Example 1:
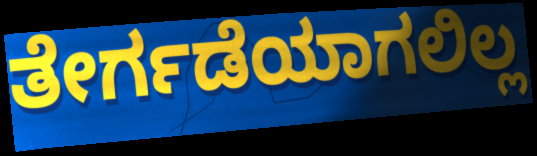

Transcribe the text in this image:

ತೇರ್ಗಡೆಯಾಗಲಿಲ್ಲ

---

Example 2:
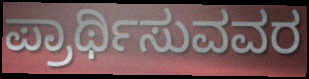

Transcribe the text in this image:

ಪ್ರಾರ್ಥಿಸುವವರ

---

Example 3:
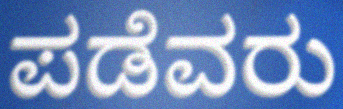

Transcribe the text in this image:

ಪಡೆವರು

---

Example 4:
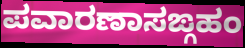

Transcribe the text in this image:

ಪವಾರಣಾಸಙ್ಗಹಂ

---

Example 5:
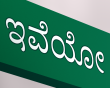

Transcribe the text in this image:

ಇವೆಯೋ